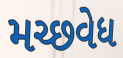
મચ્છવેધ